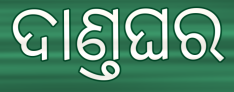
ଦାଣ୍ତଘର